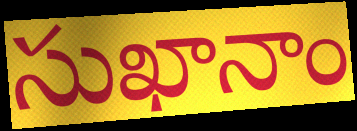
సుఖానాం